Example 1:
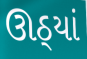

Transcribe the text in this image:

ઊઠ્યાં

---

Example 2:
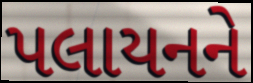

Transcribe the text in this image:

પલાયનને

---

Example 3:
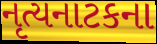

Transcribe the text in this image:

નૃત્યનાટકના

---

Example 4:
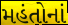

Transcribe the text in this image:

મહંતોનાં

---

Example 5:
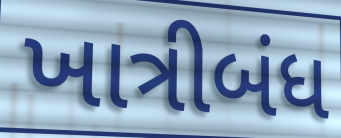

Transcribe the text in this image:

ખાત્રીબંધ